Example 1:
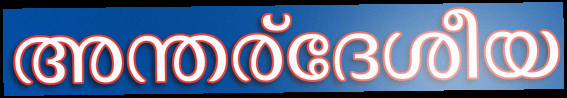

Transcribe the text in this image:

അന്തര്ദേശീയ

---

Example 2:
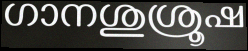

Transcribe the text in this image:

ഗാനശുശ്രൂഷ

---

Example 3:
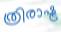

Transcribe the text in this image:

ത്രിരാഷ്ട്ര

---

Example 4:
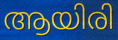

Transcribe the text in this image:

ആയിരി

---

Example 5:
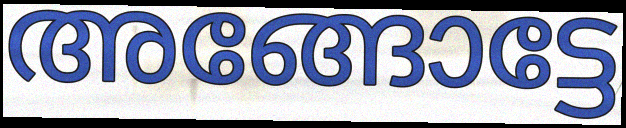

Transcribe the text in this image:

അങ്ങോട്ടേ